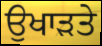
ਉਖਾੜਤੇ